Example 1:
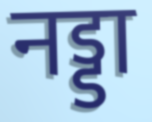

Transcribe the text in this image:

नड्डा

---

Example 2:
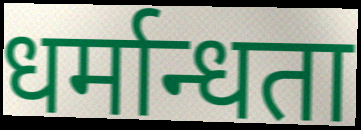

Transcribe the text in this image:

धर्मान्धता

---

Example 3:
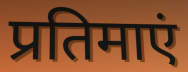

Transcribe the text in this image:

प्रतिमाएं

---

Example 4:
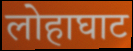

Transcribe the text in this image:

लोहाघाट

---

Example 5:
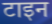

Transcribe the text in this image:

टाइन